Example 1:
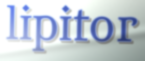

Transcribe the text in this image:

lipitor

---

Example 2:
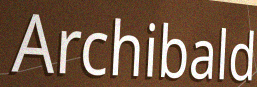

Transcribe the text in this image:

Archibald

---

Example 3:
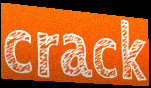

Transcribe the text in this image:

crack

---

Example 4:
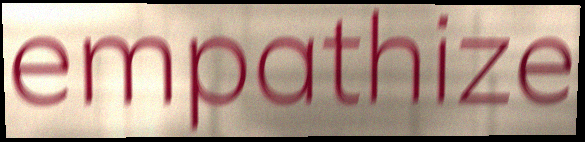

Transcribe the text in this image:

empathize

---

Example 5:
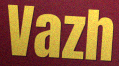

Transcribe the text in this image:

Vazh